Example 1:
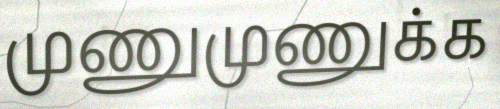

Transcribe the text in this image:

முணுமுணுக்க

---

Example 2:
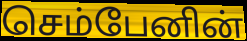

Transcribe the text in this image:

செம்பேனின்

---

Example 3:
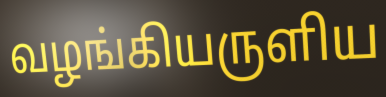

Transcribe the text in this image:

வழங்கியருளிய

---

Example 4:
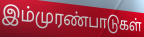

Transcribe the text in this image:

இம்முரண்பாடுகள்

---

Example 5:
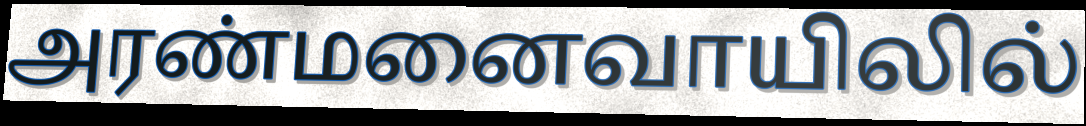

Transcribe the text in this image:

அரண்மனைவாயிலில்